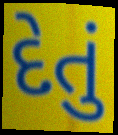
દેતું